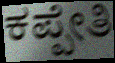
ಕಪ್ಪೇತಿ